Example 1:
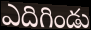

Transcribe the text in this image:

ఎదిగిండు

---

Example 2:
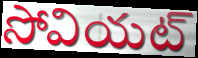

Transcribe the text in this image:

సోవియట్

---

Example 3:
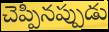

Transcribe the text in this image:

చెప్పినప్పుడు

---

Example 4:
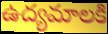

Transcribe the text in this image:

ఉద్యమాలకి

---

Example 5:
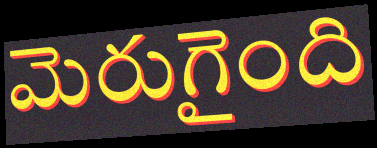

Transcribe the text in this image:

మెరుగైంది